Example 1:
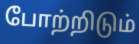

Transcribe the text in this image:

போற்றிடும்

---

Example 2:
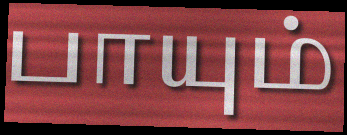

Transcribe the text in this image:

பாயும்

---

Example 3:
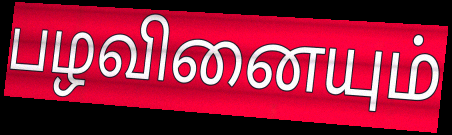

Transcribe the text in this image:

பழவினையும்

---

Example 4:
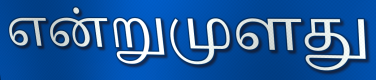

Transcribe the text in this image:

என்றுமுளது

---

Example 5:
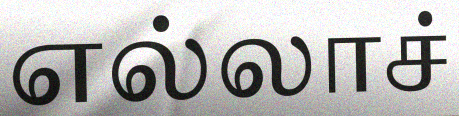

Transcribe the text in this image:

எல்லாச்